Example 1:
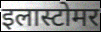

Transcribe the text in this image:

इलास्टोमर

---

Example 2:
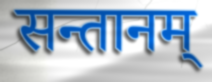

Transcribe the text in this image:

सन्तानम्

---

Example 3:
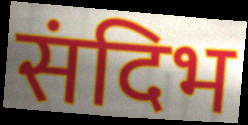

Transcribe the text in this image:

संदिभ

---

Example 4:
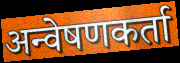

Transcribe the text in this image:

अन्वेषणकर्ता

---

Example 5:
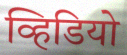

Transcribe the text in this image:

व्हिडियो